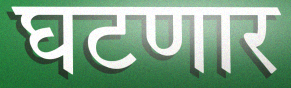
घटणार